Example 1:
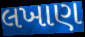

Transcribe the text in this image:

લખાણ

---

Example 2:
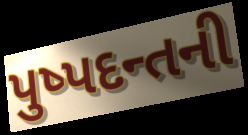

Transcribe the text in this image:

પુષ્પદન્તની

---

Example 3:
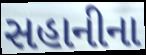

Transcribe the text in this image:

સહાનીના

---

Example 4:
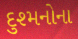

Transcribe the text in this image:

દુશ્મનોના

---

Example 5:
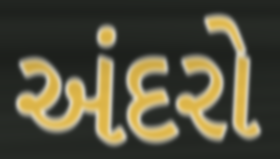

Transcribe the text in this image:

અંદરો